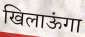
खिलाऊंगा